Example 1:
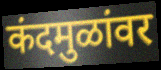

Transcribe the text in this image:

कंदमुळांवर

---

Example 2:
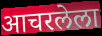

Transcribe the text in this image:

आचरलेला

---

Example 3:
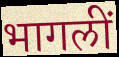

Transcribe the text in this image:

भागलीं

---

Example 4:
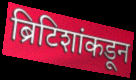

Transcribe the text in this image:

ब्रिटिशांकडून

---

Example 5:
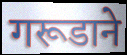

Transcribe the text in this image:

गरूडाने